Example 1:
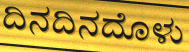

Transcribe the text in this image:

ದಿನದಿನದೊಳು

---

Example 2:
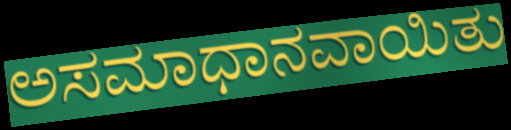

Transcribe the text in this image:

ಅಸಮಾಧಾನವಾಯಿತು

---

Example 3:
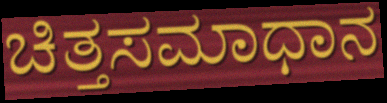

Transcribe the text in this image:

ಚಿತ್ತಸಮಾಧಾನ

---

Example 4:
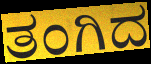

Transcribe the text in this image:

ತಂಗಿದ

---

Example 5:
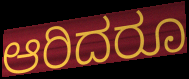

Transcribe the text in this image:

ಆರಿದರೂ